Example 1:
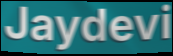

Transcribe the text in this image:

Jaydevi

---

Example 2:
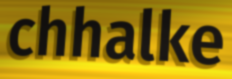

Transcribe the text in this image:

chhalke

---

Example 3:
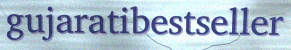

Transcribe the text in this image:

gujaratibestseller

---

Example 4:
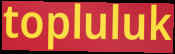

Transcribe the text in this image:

topluluk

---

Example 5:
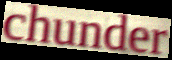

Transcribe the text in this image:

chunder